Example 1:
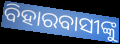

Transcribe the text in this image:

ବିହାରବାସୀଙ୍କୁ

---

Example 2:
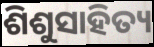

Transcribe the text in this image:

ଶିଶୁସାହିତ୍ୟ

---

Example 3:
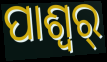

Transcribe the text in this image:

ପାଶ୍ୱର୍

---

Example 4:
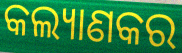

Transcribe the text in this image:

କଲ୍ୟାଣକର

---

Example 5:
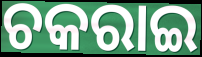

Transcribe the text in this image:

ଚକରାଇ